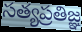
సత్యప్రతిజ్ఞ